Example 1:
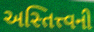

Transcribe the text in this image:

અસ્તિત્ત્વની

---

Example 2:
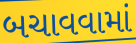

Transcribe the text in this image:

બચાવવામાં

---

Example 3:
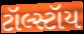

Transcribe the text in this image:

ટૉલ્સ્ટૉય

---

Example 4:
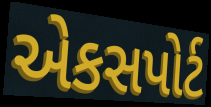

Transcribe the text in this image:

એકસપોર્ટ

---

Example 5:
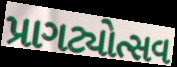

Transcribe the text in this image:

પ્રાગટ્યોત્સવ